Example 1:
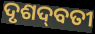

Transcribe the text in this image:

ଦୃଶଦ୍‌ବତୀ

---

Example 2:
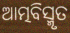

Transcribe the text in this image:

ଆତ୍ମବିସ୍ମୃତ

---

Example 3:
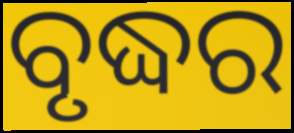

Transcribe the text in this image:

ବୃଦ୍ଧର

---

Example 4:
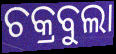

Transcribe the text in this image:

ଚକ୍ରବୁଲା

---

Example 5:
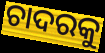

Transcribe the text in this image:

ଚାଦରକୁ